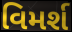
વિમર્શ